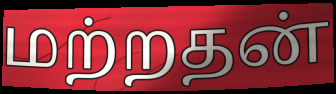
மற்றதன்